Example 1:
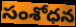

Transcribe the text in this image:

సంశోధన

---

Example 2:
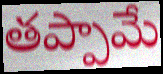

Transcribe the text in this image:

తప్పామే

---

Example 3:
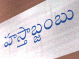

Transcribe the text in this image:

హస్తాబ్జంబు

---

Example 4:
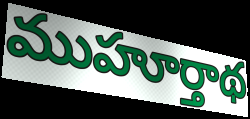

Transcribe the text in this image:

ముహూర్తాథ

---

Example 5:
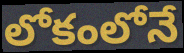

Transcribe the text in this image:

లోకంలోనే